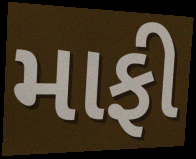
માફી